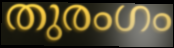
തുരംഗം